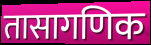
तासागणिक